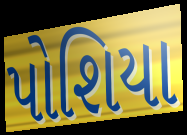
પોશિયા